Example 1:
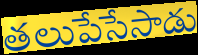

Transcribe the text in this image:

తలుపేసేసాడు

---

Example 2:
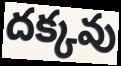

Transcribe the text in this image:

దక్కవు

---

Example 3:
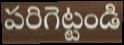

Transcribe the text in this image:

పరిగెట్టండి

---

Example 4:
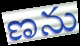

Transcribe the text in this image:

ణను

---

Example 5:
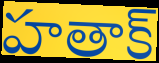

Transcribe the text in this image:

హతాక్